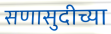
सणासुदीच्या